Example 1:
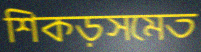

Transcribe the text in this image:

শিকড়সমেত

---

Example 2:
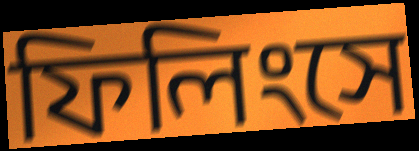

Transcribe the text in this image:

ফিলিংসে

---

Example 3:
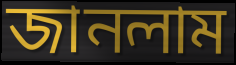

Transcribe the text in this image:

জানলাম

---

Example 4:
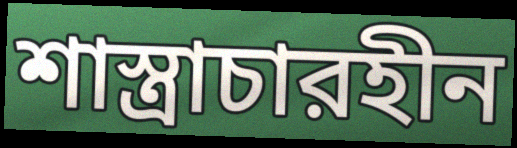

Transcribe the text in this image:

শাস্ত্রাচারহীন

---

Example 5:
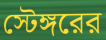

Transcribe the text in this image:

স্টেঙ্গরের